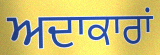
ਅਦਾਕਾਰਾਂ